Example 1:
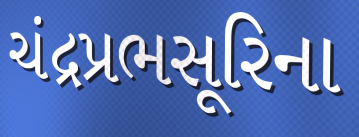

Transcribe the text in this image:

ચંદ્રપ્રભસૂરિના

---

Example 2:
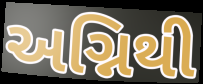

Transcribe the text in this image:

અગ્નિથી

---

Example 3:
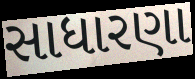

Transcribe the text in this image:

સાધારણા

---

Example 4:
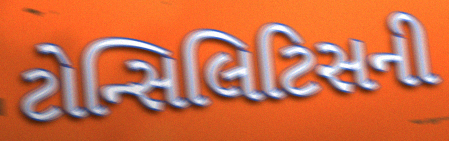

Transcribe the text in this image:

ટોન્સિલિટિસની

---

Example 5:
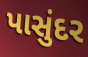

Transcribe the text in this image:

પાસુંદર